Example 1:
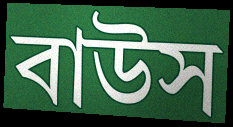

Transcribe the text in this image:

বাউস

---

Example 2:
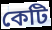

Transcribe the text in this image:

কেটি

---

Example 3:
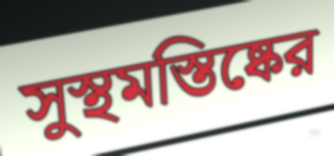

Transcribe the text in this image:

সুস্থমস্তিষ্কের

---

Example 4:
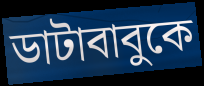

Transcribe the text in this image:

ডাটাবাবুকে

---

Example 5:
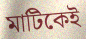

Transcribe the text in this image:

মাটিকেই